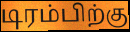
டிரம்பிற்கு